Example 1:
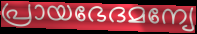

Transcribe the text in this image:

പ്രായഭേദമന്യേ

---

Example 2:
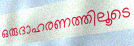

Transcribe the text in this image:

ഒരുദാഹരണത്തിലൂടെ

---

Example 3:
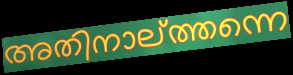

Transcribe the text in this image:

അതിനാല്ത്തന്നെ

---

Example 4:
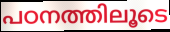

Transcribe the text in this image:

പഠനത്തിലൂടെ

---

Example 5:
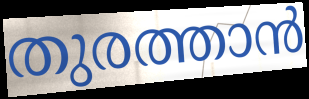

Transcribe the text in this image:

തുരത്താൻ